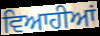
ਵਿਆਹੀਆਂ